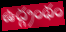
ఉద్గ్రంథం